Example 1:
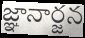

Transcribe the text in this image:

జ్ఞానార్జన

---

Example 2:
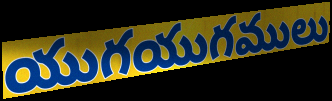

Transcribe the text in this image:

యుగయుగములు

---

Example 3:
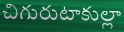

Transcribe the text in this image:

చిగురుటాకుల్లా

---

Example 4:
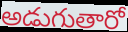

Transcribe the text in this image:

అడుగుతారో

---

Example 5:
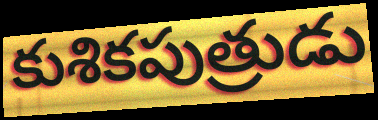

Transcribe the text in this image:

కుశికపుత్రుడు